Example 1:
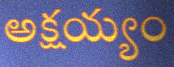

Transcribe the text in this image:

అక్షయ్యం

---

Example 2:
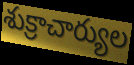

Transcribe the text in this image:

శుక్రాచార్యుల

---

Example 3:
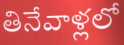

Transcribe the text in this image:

తినేవాళ్లలో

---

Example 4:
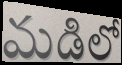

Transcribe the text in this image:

మడిలో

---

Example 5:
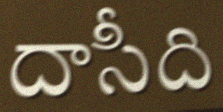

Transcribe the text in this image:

దాసీది